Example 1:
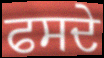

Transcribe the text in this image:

ਫਸਦੇ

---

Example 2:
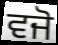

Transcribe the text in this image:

ਵਜੋ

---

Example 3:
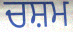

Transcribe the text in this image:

ਚਸ਼ਮ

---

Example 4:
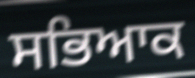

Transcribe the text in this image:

ਸਭਿਆਕ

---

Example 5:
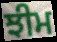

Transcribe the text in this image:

ਝੀਮ